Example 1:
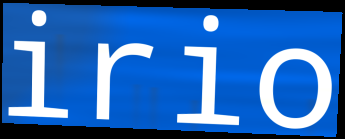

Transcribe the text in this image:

irio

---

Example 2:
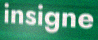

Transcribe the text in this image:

insigne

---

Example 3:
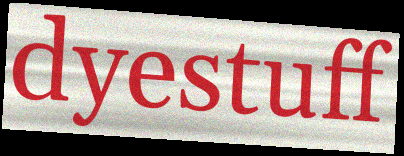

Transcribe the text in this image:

dyestuff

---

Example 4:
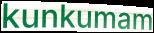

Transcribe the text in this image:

kunkumam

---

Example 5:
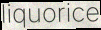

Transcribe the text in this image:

liquorice